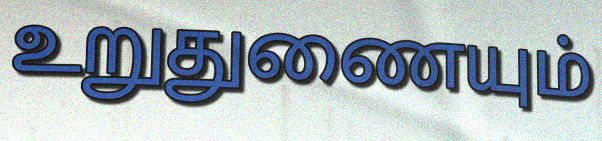
உறுதுணையும்